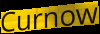
Curnow